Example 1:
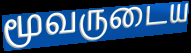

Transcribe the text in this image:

மூவருடைய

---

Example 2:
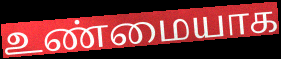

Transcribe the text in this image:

உண்மையாக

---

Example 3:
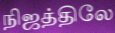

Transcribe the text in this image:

நிஜத்திலே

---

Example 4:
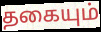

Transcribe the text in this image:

தகையும்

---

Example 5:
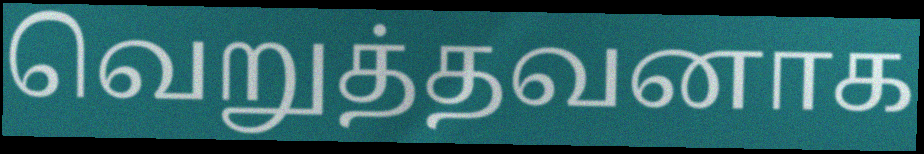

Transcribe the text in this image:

வெறுத்தவனாக